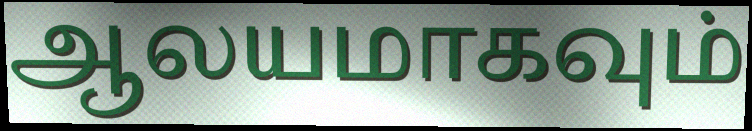
ஆலயமாகவும்